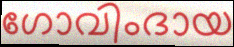
ഗോവിംദായ